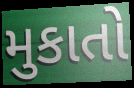
મુકાતો